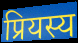
प्रियस्य